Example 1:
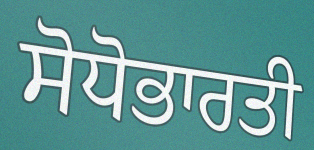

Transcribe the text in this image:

ਸੋਧੋਭਾਰਤੀ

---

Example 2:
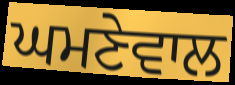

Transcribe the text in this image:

ਘਮਣੇਵਾਲ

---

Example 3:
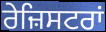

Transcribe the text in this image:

ਰੇਜ਼ਿਸਟਰਾਂ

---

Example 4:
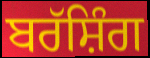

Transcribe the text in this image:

ਬਰੱਸ਼ਿੰਗ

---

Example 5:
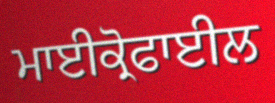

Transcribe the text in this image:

ਮਾਈਕ੍ਰੋਫਾਈਲ